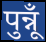
पुन्नूँ